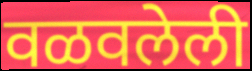
वळवलेली